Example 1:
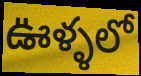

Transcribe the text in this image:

ఊళ్ళలో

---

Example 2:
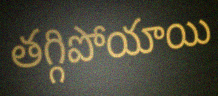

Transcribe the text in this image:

తగ్గిపోయాయి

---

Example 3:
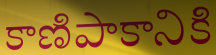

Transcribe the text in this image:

కాణిపాకానికి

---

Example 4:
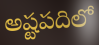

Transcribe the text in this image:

అష్టపదిలో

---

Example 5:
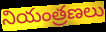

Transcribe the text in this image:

నియంత్రణలు